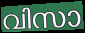
വിസാ